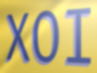
XOI